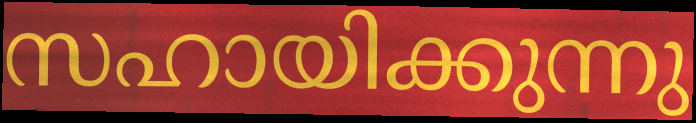
സഹായിക്കുന്നു